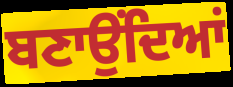
ਬਣਾਉਂਦਿਆਂ